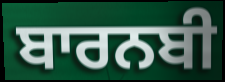
ਬਾਰਨਬੀ